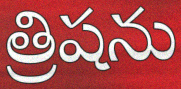
త్రిషను